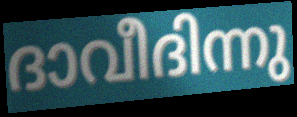
ദാവീദിന്നു